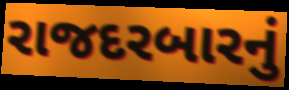
રાજદરબારનું